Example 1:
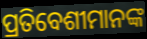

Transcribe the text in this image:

ପ୍ରତିବେଶୀମାନଙ୍କ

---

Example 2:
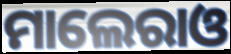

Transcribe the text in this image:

ମାଲେରାଓ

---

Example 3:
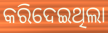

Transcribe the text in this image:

କରିଦେଇଥିଲା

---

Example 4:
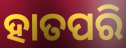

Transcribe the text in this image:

ହାତପରି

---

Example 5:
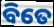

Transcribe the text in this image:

ବିତେ